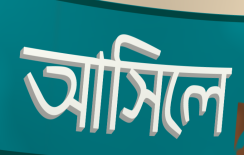
আসিলে